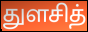
துளசித்